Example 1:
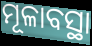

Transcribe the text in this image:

ମୂଳାବସ୍ଥା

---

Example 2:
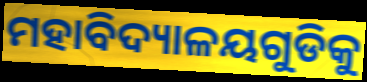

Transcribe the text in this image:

ମହାବିଦ୍ୟାଳୟଗୁଡିକୁ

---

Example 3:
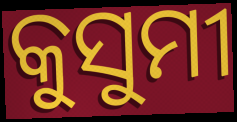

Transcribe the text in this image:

କୁସୁମୀ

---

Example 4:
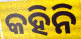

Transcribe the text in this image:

କହିନି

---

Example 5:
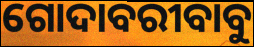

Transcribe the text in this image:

ଗୋଦାବରୀବାବୁ